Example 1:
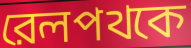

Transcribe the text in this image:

রেলপথকে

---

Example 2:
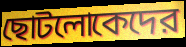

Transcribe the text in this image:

ছোটলোকেদের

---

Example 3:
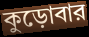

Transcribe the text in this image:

কুড়োবার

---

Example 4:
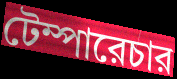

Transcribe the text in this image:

টেম্পারেচার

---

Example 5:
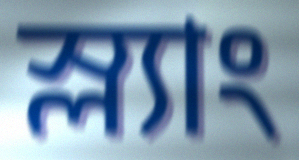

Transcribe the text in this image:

স্ল্যাং